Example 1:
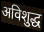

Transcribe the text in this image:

अविशुद्ध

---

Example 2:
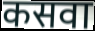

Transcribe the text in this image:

कसवा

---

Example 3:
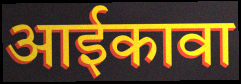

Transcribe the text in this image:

आईकावा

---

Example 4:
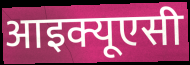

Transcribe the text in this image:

आइक्यूएसी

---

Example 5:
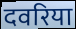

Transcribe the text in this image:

दवरिया